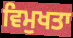
ਵਿਮੁਖਤਾ